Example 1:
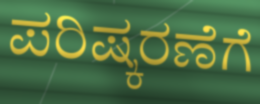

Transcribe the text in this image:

ಪರಿಷ್ಕರಣೆಗೆ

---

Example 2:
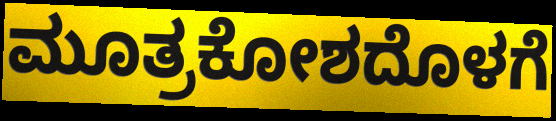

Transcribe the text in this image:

ಮೂತ್ರಕೋಶದೊಳಗೆ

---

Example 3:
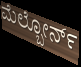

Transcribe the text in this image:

ಮೆಲ್ಬೋರ್ನ್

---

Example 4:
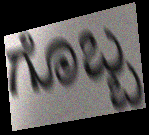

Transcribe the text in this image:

ಗೊಬ್ಬ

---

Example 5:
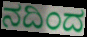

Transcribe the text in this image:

ನದಿಂದ